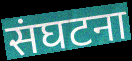
संघटना